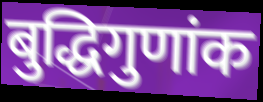
बुद्धिगुणांक